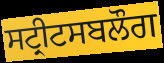
ਸਟ੍ਰੀਟਸਬਲੌਗ